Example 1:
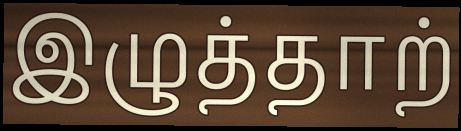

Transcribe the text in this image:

இழுத்தாற்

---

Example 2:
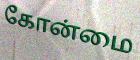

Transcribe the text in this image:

கோன்மை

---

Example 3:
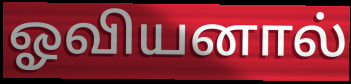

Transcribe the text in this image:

ஓவியனால்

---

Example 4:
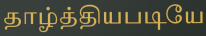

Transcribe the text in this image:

தாழ்த்தியபடியே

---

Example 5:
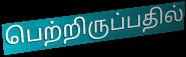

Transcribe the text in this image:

பெற்றிருப்பதில்